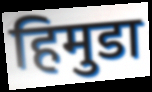
हिमुडा